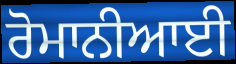
ਰੋਮਾਨੀਆਈ